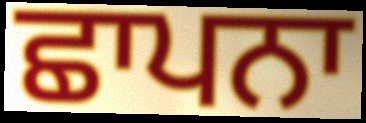
ਛਾਪਨਾ